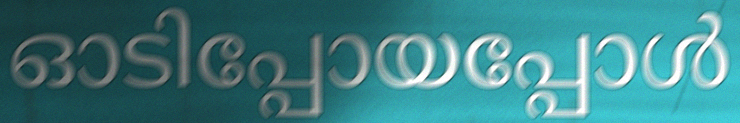
ഓടിപ്പോയപ്പോൾ